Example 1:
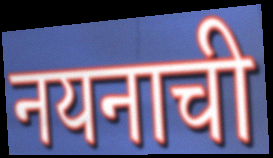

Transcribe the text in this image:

नयनाची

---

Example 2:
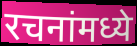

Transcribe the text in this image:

रचनांमध्ये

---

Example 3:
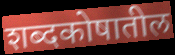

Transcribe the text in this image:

शब्दकोषातील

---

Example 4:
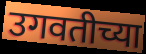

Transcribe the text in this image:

उगवतीच्या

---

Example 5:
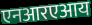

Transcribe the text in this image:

एनआरएआय